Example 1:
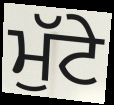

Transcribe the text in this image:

ਮੁੱਟੇ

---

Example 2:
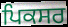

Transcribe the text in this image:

ਪਿਕਸਰ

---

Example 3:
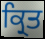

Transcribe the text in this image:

ਕ੍ਰਿਤ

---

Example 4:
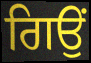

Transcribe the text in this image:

ਗਿਉਂ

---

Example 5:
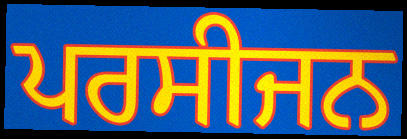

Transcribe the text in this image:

ਪਰਸੀਜਨ